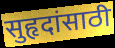
सुहृदांसाठी